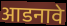
आडनावे